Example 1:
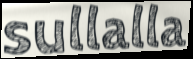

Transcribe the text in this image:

sullalla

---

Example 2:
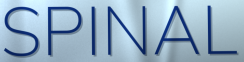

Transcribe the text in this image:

SPINAL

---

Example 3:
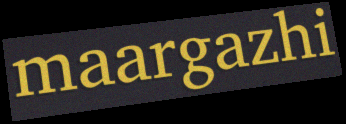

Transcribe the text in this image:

maargazhi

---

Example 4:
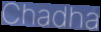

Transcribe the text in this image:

Chadha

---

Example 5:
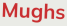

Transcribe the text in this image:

Mughs